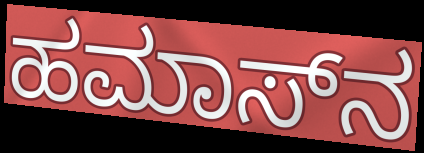
ಹಮಾಸ್‌ನ